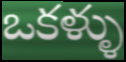
ఒకళ్ళు